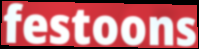
festoons